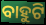
ବାହୁଟି